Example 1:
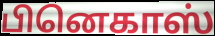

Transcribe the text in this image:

பினெகாஸ்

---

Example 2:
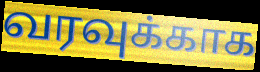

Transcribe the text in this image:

வரவுக்காக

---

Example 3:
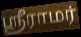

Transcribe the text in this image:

ஶ்ரீராமர்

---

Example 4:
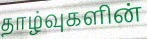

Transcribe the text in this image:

தாழ்வுகளின்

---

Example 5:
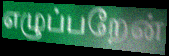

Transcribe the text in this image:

எழுப்பறேன்